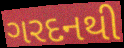
ગરદનથી